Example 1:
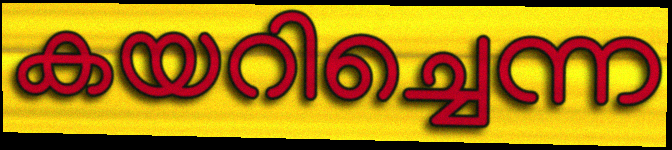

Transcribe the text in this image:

കയറിച്ചെന്ന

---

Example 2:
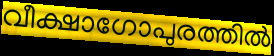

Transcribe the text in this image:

വീക്ഷാഗോപുരത്തിൽ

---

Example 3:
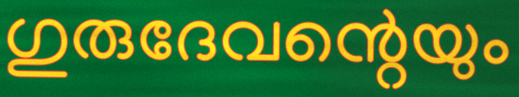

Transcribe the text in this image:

ഗുരുദേവന്റെയും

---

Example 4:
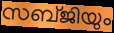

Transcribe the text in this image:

സബ്ജിയും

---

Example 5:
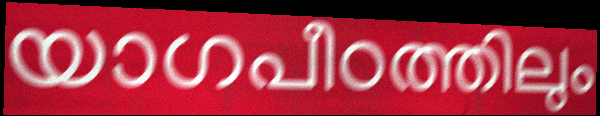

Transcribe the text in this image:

യാഗപീഠത്തിലും